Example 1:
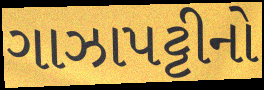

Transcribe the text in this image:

ગાઝાપટ્ટીનો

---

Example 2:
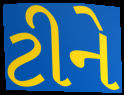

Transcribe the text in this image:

ટીને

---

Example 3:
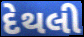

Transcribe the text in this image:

દેથલી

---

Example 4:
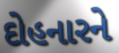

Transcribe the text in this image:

દોહનારને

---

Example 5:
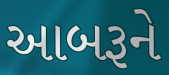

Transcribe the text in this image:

આબરૂને